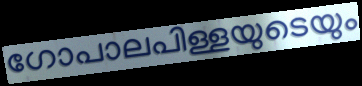
ഗോപാലപിള്ളയുടെയും